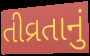
તીવ્રતાનું